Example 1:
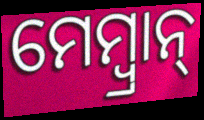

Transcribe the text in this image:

ମେମ୍ବ୍ରାନ୍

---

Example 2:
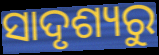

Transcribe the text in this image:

ସାଦୃଶ୍ୟରୁ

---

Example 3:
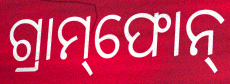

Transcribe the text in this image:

ଗ୍ରାମ୍‌ଫୋନ୍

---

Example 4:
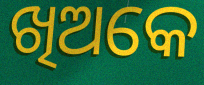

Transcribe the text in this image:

ଖିଅକେ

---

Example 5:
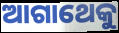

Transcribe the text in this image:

ଆଗାଥେକୁ